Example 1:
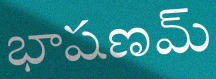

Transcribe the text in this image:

భాషణమ్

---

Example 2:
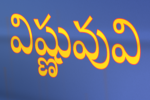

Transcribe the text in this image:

విష్ణువువి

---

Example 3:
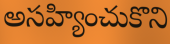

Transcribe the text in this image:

అసహ్యించుకొని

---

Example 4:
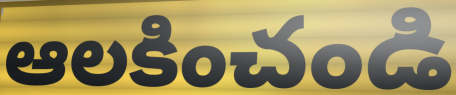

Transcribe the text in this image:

ఆలకించండి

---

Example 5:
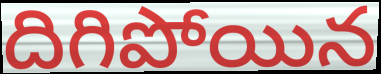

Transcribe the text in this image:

దిగిపోయిన